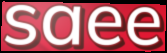
saee